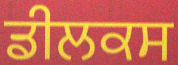
ਡੀਲਕਸ